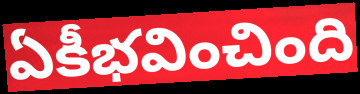
ఏకీభవించింది